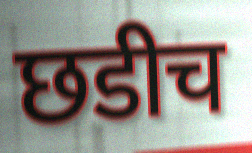
छडीच